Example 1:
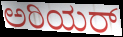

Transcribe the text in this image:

ಅರಿಯರ್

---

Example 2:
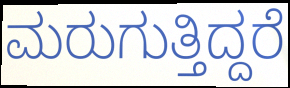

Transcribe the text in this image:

ಮರುಗುತ್ತಿದ್ದರೆ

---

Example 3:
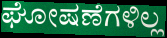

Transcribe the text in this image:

ಘೋಷಣೆಗಳಿಲ್ಲ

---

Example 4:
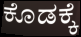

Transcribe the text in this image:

ಕೊಡಕ್ಕೆ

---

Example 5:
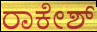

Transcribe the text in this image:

ರಾಕೇಶ್